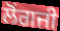
ਲੋਂਗਜੀ